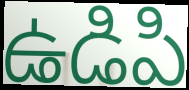
ఉడిపి